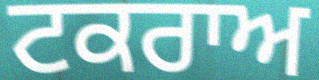
ਟਕਰਾਅ